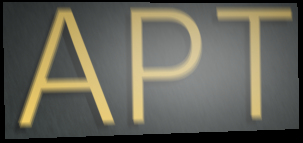
APT